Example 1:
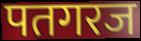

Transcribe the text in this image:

पतगरज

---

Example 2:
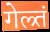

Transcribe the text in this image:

गेल्तं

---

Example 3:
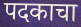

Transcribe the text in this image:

पदकाचा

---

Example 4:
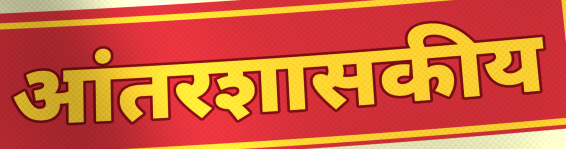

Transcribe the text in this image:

आंतरशासकीय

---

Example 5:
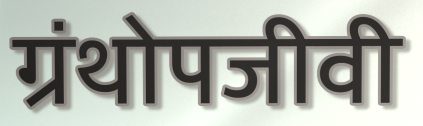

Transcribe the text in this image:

ग्रंथोपजीवी